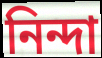
নিন্দা